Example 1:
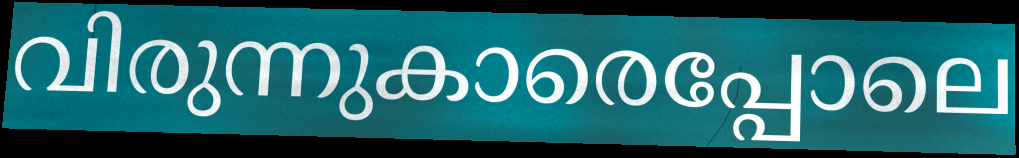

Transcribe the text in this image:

വിരുന്നുകാരെപ്പോലെ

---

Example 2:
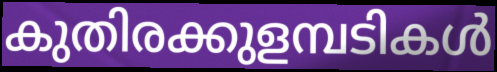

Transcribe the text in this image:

കുതിരക്കുളമ്പടികൾ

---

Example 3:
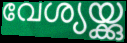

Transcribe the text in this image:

വേശ്യയ്ക്കു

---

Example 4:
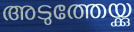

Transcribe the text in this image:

അടുത്തേയ്ക്കു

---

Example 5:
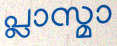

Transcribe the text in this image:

പ്ലാസ്മാ